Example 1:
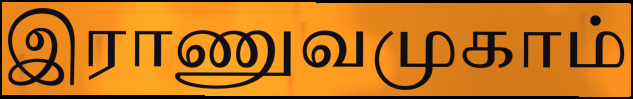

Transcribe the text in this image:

இராணுவமுகாம்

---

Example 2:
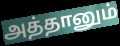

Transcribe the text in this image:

அத்தானும்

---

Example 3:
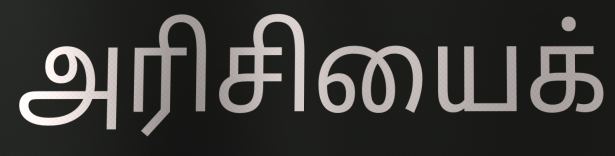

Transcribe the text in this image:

அரிசியைக்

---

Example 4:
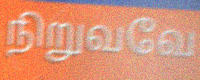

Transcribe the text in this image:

நிறுவவே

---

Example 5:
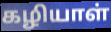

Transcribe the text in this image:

கழியாள்